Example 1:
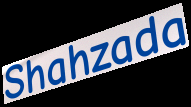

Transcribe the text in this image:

Shahzada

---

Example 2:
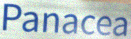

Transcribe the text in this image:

Panacea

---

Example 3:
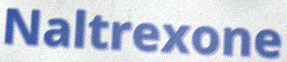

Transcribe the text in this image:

Naltrexone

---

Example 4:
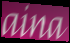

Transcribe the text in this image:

aina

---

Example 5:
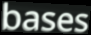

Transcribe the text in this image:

bases